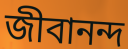
জীবানন্দ